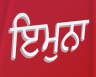
ਇਮੁਨਾ